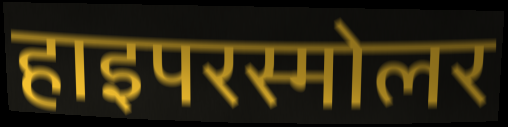
हाइपरस्मोलर